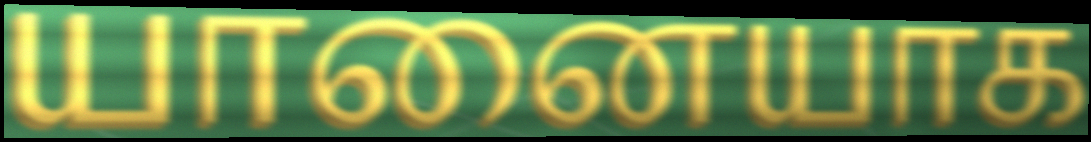
யானையாக